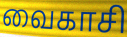
வைகாசி